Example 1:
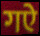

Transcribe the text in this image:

गऐ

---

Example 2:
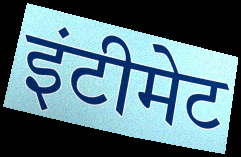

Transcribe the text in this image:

इंटीमेट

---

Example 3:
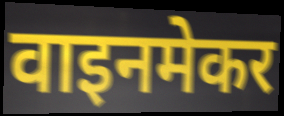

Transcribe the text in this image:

वाइनमेकर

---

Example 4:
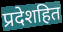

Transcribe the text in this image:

प्रदेशहित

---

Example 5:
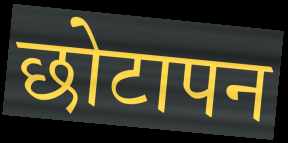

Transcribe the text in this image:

छोटापन